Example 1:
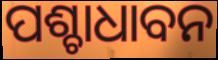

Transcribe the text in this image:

ପଶ୍ଚାଧାବନ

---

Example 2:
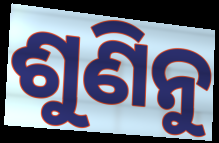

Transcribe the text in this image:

ଶୁଣିନୁ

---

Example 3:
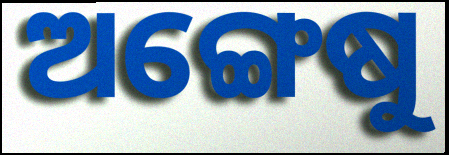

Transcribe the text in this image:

ଅଙ୍ଗେଷୁ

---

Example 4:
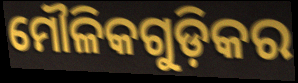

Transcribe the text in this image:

ମୌଳିକଗୁଡ଼ିକର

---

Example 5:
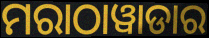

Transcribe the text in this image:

ମରାଠାୱାଡାର